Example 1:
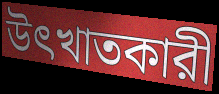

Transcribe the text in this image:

উৎখাতকারী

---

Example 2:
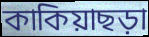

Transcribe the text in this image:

কাকিয়াছড়া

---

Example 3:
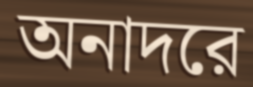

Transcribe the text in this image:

অনাদরে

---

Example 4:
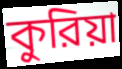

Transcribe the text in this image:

কুরিয়া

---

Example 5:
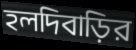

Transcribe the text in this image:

হলদিবাড়ির